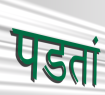
पडतां